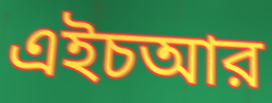
এইচআর